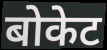
बोकेट